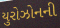
યુરોઝોનની